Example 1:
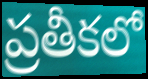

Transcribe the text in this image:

ప్రతీకలో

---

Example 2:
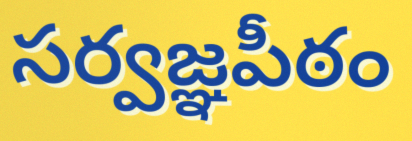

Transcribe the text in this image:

సర్వజ్ఞపీఠం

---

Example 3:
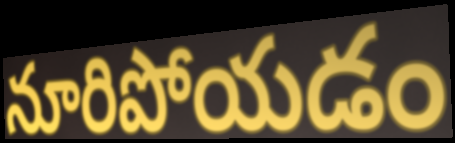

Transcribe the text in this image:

నూరిపోయడం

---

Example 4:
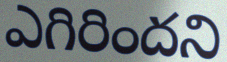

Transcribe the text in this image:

ఎగిరిందని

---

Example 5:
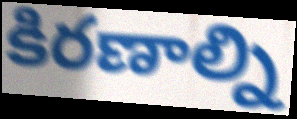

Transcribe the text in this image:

కిరణాల్ని